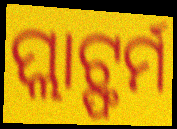
ପ୍ଲାଟ୍ଫର୍ମ